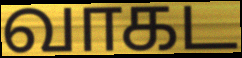
வாகட